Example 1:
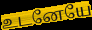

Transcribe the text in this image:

உடனேயே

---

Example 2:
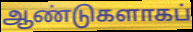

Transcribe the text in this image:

ஆண்டுகளாகப்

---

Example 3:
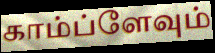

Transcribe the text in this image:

காம்ப்ளேவும்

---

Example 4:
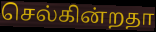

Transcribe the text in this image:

செல்கின்றதா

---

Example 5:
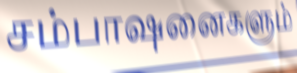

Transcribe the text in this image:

சம்பாஷனைகளும்